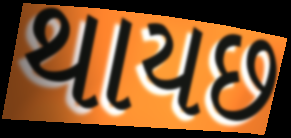
થાયછ